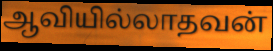
ஆவியில்லாதவன்